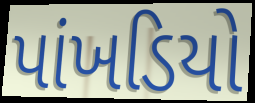
પાંખડિયો